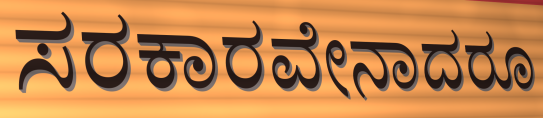
ಸರಕಾರವೇನಾದರೂ